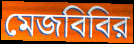
মেজবিবির